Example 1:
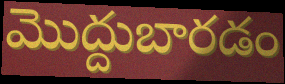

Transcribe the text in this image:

మొద్దుబారడం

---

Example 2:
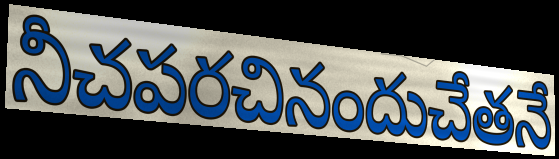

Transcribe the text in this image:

నీచపరచినందుచేతనే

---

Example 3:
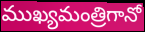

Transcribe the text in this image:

ముఖ్యమంత్రిగానో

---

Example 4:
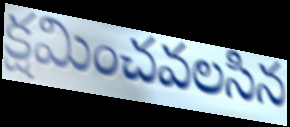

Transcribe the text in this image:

క్షమించవలసిన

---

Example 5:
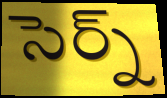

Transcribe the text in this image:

సెర్న్